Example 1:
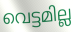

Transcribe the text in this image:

വെട്ടമില്ല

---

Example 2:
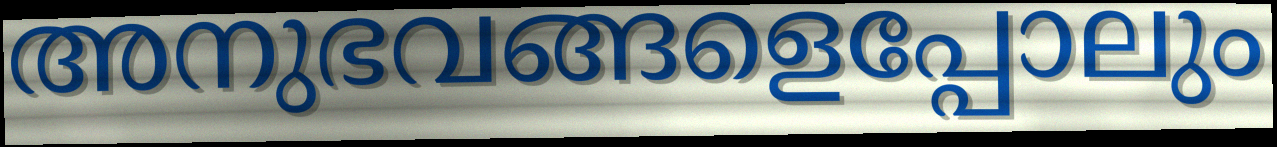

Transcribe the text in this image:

അനുഭവങ്ങളെപ്പോലും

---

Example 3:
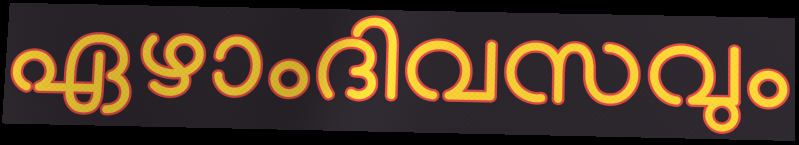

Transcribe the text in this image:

ഏഴാംദിവസവും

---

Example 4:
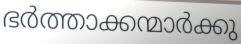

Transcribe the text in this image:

ഭർത്താക്കന്മാർക്കു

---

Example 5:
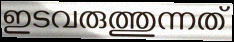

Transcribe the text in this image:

ഇടവരുത്തുന്നത്